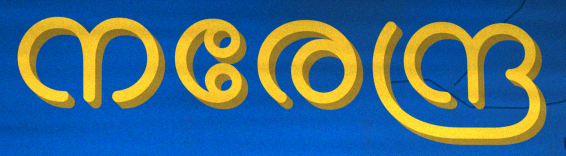
നരേന്ദ്ര